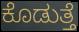
ಕೊಡುತ್ತೆ